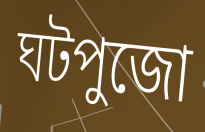
ঘটপুজো